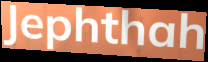
Jephthah